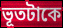
ভূতটাকে